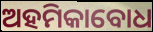
ଅହମିକାବୋଧ